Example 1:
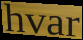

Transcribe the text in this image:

hvar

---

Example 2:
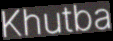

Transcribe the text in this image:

Khutba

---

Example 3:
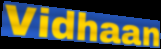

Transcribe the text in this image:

Vidhaan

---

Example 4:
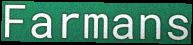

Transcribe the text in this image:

Farmans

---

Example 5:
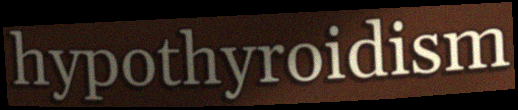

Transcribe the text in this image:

hypothyroidism